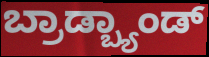
ಬ್ರಾಡ್ಬ್ಯಾಂಡ್